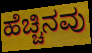
ಹೆಚ್ಚಿನವು